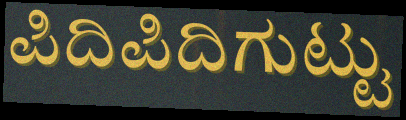
ಪಿದಿಪಿದಿಗುಟ್ಟು